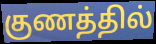
குணத்தில்